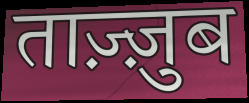
ताज़्ज़ुब